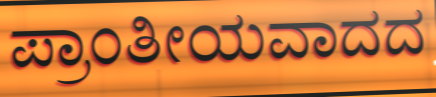
ಪ್ರಾಂತೀಯವಾದದ